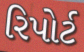
રિપોર્ટ